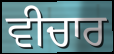
ਵੀਚਾਰ